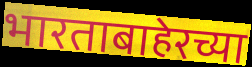
भारताबाहेरच्या